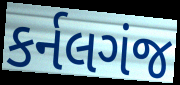
કર્નલગંજ